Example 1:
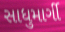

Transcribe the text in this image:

સાધુમાર્ગી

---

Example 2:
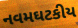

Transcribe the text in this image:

નવમઘટકીય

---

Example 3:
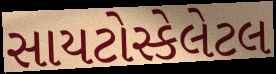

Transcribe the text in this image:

સાયટોસ્કેલેટલ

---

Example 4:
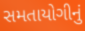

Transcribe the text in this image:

સમતાયોગીનું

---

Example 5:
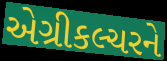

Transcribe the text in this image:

એગ્રીકલ્ચરને